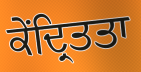
ਕੇਂਦ੍ਰਿਤਤਾ